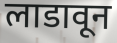
लाडावून